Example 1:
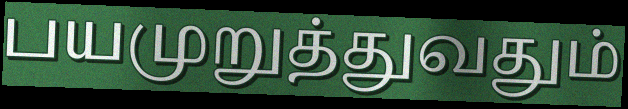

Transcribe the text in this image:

பயமுறுத்துவதும்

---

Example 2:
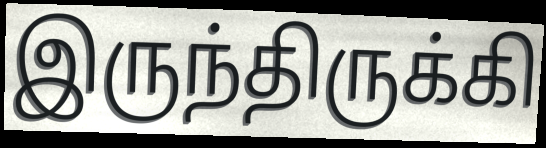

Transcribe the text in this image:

இருந்திருக்கி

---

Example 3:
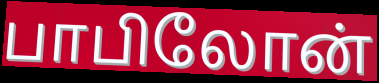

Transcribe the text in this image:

பாபிலோன்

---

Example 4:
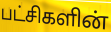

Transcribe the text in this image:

பட்சிகளின்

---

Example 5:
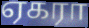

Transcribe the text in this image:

ஏகரா